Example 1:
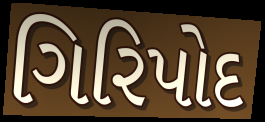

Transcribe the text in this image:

ગિરિપોદ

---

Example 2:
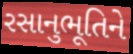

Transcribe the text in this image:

રસાનુભૂતિને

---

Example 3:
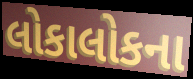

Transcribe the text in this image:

લોકાલોકના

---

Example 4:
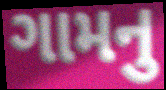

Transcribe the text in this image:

ગામનુ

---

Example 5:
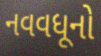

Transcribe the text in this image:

નવવધૂનો